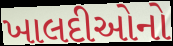
ખાલદીઓનો